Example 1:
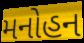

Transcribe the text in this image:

મનોહન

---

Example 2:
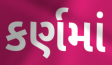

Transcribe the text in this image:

કર્ણમાં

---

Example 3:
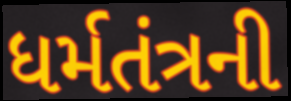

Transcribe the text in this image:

ધર્મતંત્રની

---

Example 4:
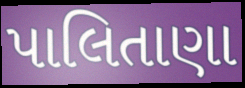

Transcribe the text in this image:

પાલિતાણા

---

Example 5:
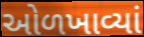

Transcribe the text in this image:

ઓળખાવ્યાં